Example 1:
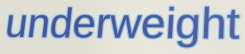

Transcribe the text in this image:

underweight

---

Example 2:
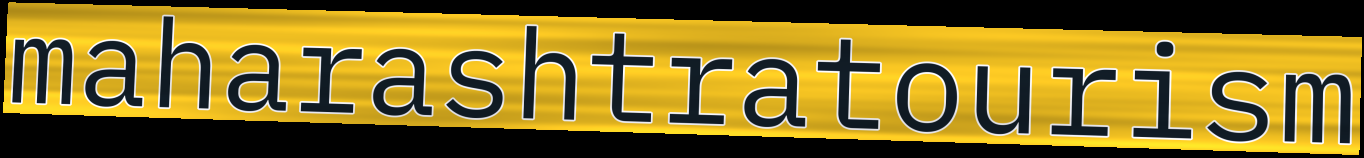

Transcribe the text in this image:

maharashtratourism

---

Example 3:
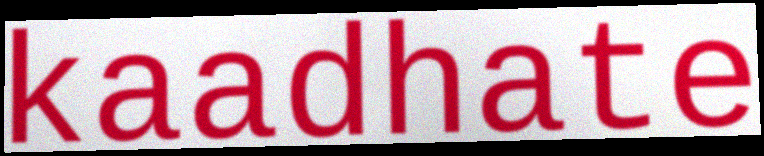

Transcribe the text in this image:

kaadhate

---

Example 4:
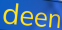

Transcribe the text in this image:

deen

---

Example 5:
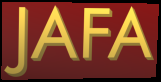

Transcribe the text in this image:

JAFA